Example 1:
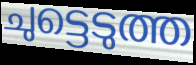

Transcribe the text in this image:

ചുട്ടെടുത്ത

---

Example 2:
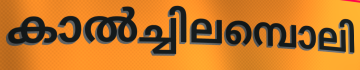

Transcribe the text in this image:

കാൽച്ചിലമ്പൊലി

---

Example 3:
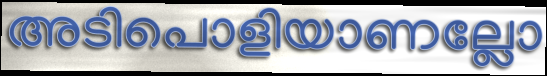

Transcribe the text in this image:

അടിപൊളിയാണല്ലോ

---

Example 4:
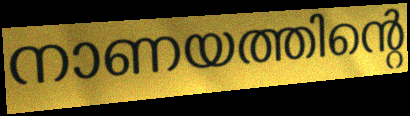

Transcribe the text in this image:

നാണയത്തിന്റെ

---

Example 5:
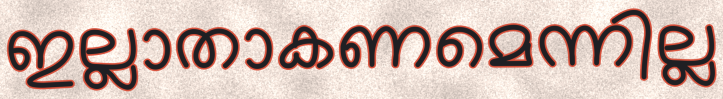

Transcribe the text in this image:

ഇല്ലാതാകണമെന്നില്ല